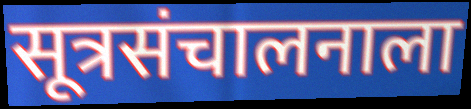
सूत्रसंचालनाला